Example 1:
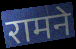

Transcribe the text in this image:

रामने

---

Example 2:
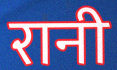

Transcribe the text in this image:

रानी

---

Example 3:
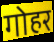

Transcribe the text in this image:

गोहर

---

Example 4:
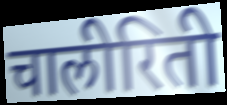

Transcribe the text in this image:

चालीरिती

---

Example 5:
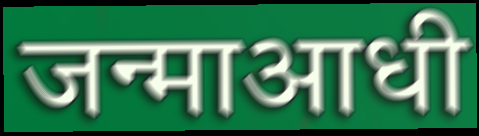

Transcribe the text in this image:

जन्माआधी